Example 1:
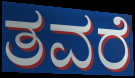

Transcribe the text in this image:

ತವರೆ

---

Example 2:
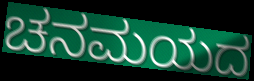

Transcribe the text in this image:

ಚನಮಯದ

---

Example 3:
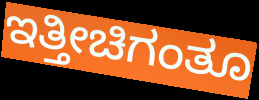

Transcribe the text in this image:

ಇತ್ತೀಚಿಗಂತೂ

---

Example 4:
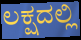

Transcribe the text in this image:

ಲಕ್ಷದಲ್ಲಿ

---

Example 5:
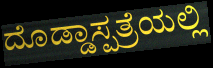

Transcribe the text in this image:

ದೊಡ್ಡಾಸ್ಪತ್ರೆಯಲ್ಲಿ